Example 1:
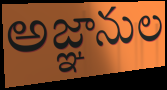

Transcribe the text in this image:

అజ్ఞానుల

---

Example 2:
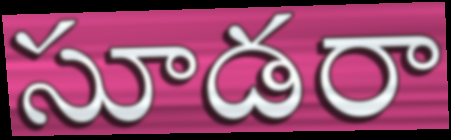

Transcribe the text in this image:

సూడరా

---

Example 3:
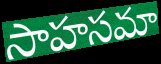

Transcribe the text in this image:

సాహసమా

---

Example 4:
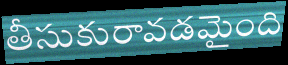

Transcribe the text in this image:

తీసుకురావడమైంది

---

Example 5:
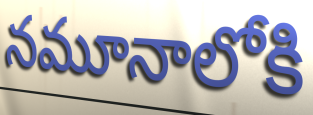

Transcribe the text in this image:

నమూనాలోకి